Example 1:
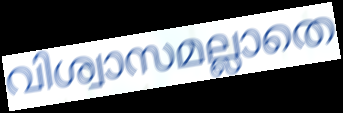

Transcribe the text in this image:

വിശ്വാസമല്ലാതെ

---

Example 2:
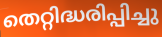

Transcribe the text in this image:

തെറ്റിദ്ധരിപ്പിച്ചു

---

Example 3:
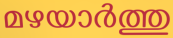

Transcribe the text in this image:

മഴയാർത്തു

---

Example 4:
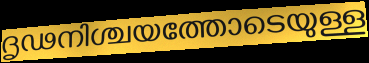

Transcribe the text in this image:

ദൃഢനിശ്ചയത്തോടെയുള്ള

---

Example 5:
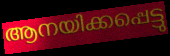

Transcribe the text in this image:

ആനയിക്കപ്പെട്ടു